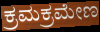
ಕ್ರಮಕ್ರಮೇಣ